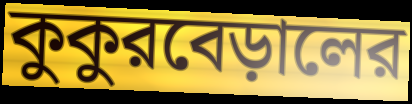
কুকুরবেড়ালের